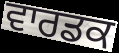
ਵਾਰਡਕ